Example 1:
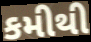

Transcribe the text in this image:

કમીથી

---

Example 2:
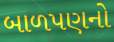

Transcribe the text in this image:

બાળપણનો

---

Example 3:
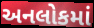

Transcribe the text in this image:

અનલોકમાં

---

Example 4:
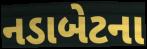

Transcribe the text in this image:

નડાબેટના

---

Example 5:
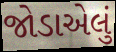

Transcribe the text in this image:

જોડાએલું